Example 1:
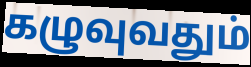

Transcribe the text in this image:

கழுவுவதும்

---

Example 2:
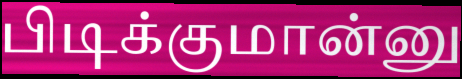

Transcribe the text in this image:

பிடிக்குமான்னு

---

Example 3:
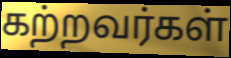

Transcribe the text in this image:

கற்றவர்கள்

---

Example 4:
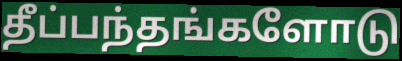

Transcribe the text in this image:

தீப்பந்தங்களோடு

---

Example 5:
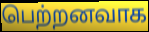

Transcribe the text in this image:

பெற்றனவாக